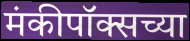
मंकीपॉक्सच्या